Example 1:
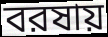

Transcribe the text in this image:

বরষায়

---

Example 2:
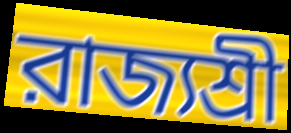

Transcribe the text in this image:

রাজ্যশ্রী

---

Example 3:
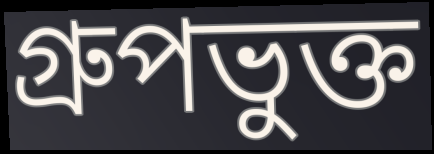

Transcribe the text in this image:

গ্রুপভুক্ত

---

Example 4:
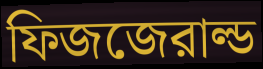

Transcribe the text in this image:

ফিজজেরাল্ড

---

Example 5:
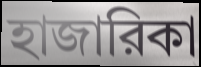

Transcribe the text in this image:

হাজারিকা